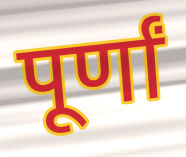
पूर्णां